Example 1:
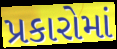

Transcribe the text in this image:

પ્રકારોમાં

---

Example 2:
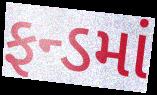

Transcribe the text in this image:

ફન્ડમાં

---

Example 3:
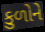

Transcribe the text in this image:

કુળોને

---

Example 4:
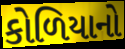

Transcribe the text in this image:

કોળિયાનો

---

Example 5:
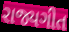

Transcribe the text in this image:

રાજ્યગીત